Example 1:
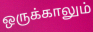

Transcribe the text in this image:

ஒருக்காலும்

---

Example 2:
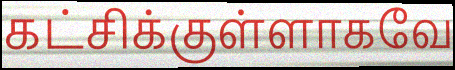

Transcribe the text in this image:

கட்சிக்குள்ளாகவே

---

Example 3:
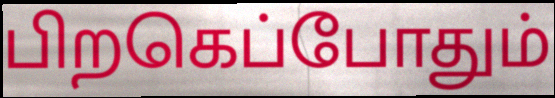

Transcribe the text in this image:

பிறகெப்போதும்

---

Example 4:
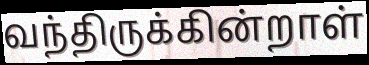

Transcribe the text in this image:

வந்திருக்கின்றாள்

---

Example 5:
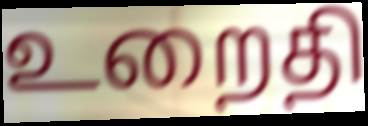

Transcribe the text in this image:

உறைதி